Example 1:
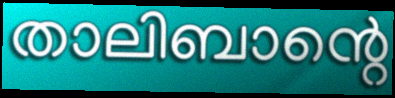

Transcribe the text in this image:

താലിബാന്റെ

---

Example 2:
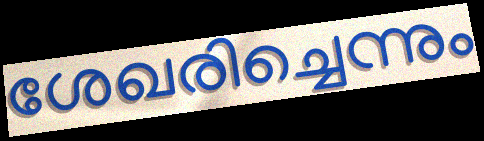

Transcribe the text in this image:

ശേഖരിച്ചെന്നും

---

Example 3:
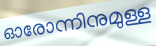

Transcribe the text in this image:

ഓരോന്നിനുമുള്ള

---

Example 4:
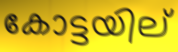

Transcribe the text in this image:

കോട്ടയില്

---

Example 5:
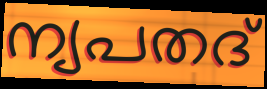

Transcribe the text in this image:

ന്യപതദ്